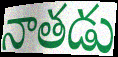
నాతడు